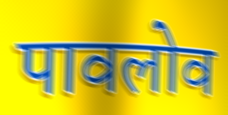
पावलोव